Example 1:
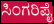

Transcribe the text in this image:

ಸಿಂಗರಿಪೈ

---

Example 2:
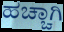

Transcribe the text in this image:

ಹಚ್ಚಾಗಿ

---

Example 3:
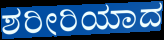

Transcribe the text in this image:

ಶರೀರಿಯಾದ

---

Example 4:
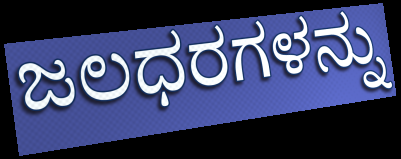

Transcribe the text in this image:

ಜಲಧರಗಳನ್ನು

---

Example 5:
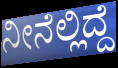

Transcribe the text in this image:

ನೀನೆಲ್ಲಿದ್ದೆ